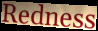
Redness